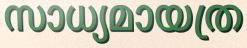
സാധ്യമായത്ര